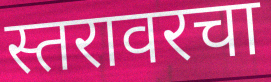
स्तरावरचा